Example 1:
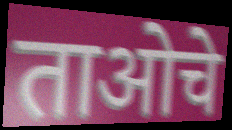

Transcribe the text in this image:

ताओचे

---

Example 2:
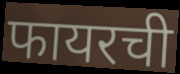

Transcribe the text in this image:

फायरची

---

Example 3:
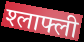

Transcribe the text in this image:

श्लाफ्ली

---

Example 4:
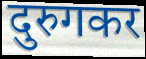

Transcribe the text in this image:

दुरुगकर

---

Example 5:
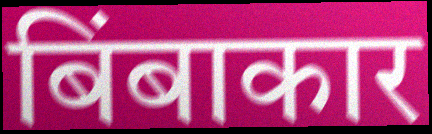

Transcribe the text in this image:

बिंबाकार